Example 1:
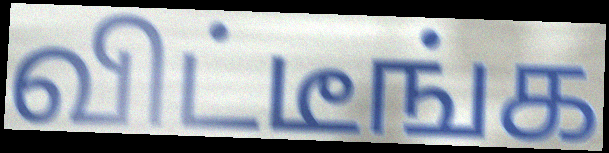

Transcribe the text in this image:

விட்டீங்க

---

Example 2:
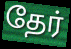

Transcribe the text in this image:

தேர்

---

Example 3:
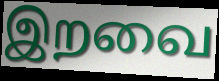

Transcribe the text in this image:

இறவை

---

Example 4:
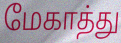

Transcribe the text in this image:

மேகாத்து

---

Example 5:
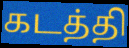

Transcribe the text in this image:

கடத்தி